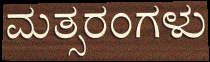
ಮತ್ಸರಂಗಳು